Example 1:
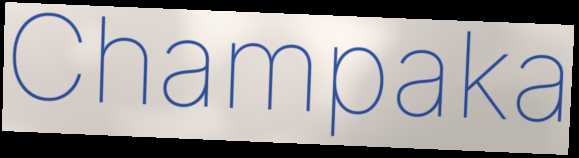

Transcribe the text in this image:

Champaka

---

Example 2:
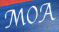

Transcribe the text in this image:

MOA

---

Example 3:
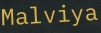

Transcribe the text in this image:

Malviya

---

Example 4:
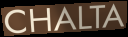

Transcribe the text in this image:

CHALTA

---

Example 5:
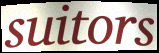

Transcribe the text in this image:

suitors